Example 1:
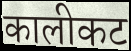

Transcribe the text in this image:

कालीकट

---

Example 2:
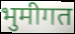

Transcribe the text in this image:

भुमीगत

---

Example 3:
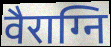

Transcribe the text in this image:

वैराग्नि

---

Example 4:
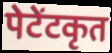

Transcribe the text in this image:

पेटेंटकृत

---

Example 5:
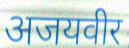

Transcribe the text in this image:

अजयवीर